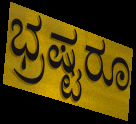
ಭ್ರಷ್ಟರೂ